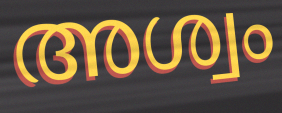
അശ്വം